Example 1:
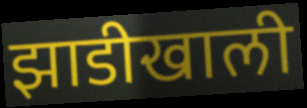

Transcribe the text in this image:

झाडीखाली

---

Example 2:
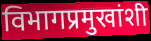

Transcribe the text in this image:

विभागप्रमुखांशी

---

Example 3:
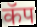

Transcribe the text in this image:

कॅप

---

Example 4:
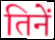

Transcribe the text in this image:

तिनें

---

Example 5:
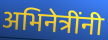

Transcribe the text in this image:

अभिनेत्रींनी